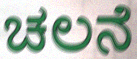
ಚಲನೆ